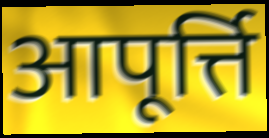
आपूर्त्ति